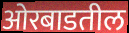
ओरबाडतील